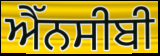
ਐੱਨਸੀਬੀ